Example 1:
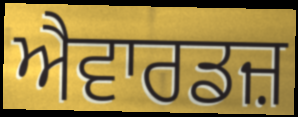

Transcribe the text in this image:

ਐਵਾਰਡਜ਼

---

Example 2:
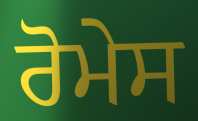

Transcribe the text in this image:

ਰੋਮੇਸ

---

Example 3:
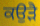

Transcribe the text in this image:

ਕਉੜੈ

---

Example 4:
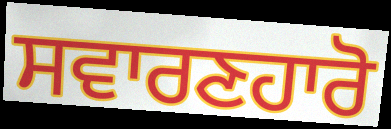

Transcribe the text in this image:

ਸਵਾਰਣਹਾਰੋ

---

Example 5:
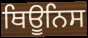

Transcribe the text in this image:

ਥਿਊਨਿਸ